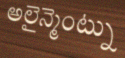
అలైన్మెంట్ను